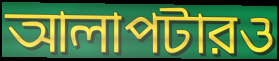
আলাপটারও